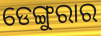
ଡେଙ୍ଗୁରାର